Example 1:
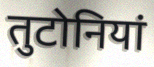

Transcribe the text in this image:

तुटोनियां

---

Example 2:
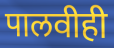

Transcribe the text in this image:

पालवीही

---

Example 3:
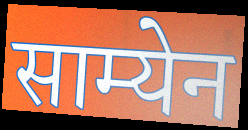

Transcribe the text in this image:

साम्येन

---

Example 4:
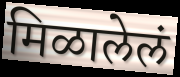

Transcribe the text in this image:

मिळालेलं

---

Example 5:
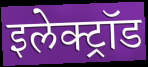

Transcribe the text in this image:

इलेक्ट्रॉड